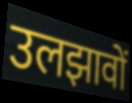
उलझावों